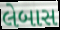
લેબાસ